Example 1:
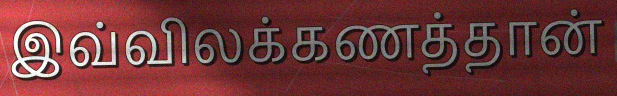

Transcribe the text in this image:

இவ்விலக்கணத்தான்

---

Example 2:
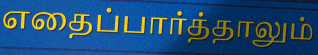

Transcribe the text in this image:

எதைப்பார்த்தாலும்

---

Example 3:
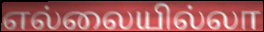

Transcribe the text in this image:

எல்லையில்லா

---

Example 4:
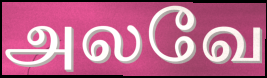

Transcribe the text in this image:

அலவே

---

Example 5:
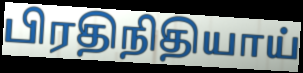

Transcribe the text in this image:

பிரதிநிதியாய்